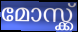
മോസ്ക്ക്